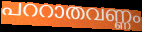
പററാതവണ്ണം